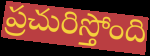
ప్రచురిస్తోంది